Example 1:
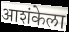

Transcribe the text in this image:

आशंकेला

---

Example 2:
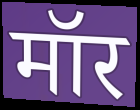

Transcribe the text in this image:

मॉर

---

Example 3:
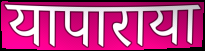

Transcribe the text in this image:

यापाराया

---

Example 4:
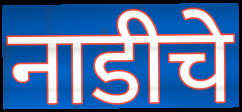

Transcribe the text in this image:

नाडीचे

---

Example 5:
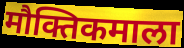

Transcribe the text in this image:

मौक्तिकमाला